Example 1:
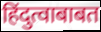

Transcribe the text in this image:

हिंदुत्वाबाबत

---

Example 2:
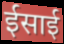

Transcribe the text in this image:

ईसाई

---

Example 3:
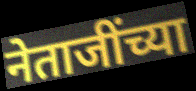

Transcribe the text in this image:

नेताजींच्या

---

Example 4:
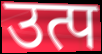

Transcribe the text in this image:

उत्प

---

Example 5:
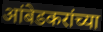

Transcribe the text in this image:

आंबेडकरांच्या